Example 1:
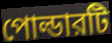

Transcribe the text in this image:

পোল্ডারটি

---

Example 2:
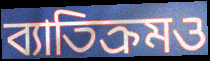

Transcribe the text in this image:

ব্যাতিক্রমও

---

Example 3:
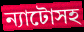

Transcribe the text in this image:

ন্যাটোসহ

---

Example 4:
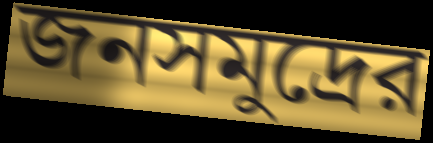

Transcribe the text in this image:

জনসমুদ্রের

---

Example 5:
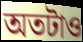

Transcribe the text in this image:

অতটাও